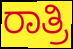
ರಾತ್ರಿ